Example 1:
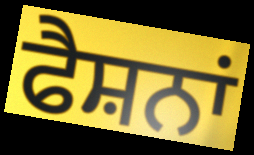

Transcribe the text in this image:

ਫੈਸ਼ਨਾਂ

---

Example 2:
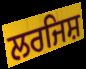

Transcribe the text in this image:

ਲਰਜਿਸ਼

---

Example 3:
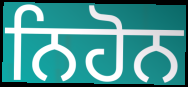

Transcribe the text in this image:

ਨਿਹੋਨ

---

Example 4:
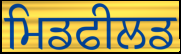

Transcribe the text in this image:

ਮਿਡਫੀਲਡ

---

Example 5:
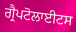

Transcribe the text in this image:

ਗ੍ਰੈਪਟੋਲਾਈਟਸ